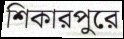
শিকারপুরে